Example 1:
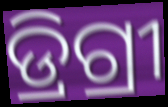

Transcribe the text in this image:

ଡ୍ରିଗ୍ରୀ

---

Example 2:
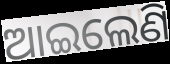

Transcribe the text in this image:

ଆଇଲେଣି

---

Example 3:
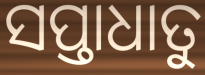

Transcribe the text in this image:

ସପ୍ତାଧାତୁ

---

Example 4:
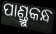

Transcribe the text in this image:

ପାଣ୍ଡ୍ରୁକନ୍ଧ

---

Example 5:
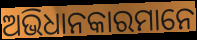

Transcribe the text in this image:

ଅଭିଧାନକାରମାନେ